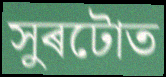
সুৰটোত